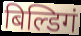
बिल्डिगं